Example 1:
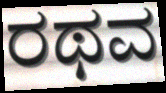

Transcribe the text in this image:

ರಥವ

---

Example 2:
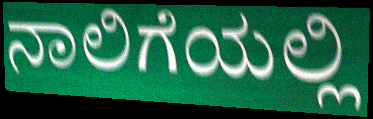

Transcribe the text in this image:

ನಾಲಿಗೆಯಲ್ಲಿ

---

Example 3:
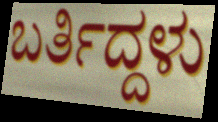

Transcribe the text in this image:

ಬರ್ತಿದ್ದಳು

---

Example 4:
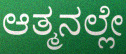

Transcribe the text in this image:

ಆತ್ಮನಲ್ಲೇ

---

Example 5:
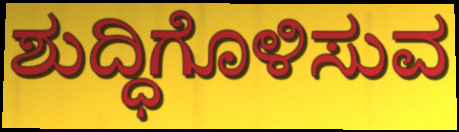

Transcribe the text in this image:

ಶುದ್ಧಿಗೊಳಿಸುವ